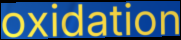
oxidation